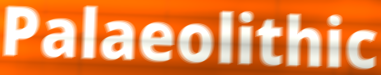
Palaeolithic